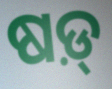
ଷଡ଼୍